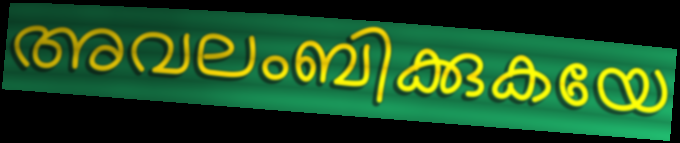
അവലംബിക്കുകയേ